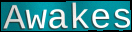
Awakes